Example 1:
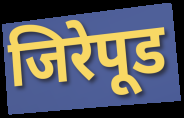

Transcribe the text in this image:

जिरेपूड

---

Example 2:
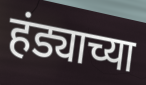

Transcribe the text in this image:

हंड्याच्या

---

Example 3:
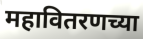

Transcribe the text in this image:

महावितरणच्या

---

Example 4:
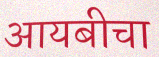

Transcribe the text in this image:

आयबीचा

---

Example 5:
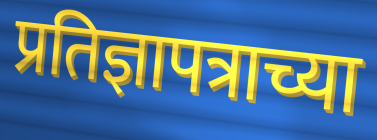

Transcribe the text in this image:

प्रतिज्ञापत्राच्या